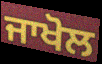
ਜਾਖੋਲ